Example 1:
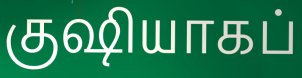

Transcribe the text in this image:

குஷியாகப்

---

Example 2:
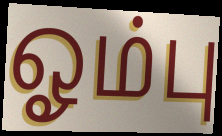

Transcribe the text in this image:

ஓம்பு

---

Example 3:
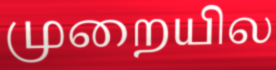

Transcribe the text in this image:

முறையில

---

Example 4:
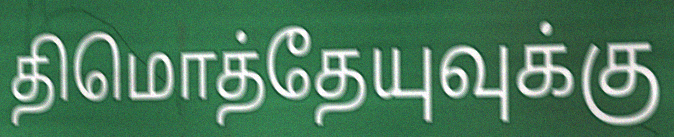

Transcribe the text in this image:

திமொத்தேயுவுக்கு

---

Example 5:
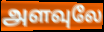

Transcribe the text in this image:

அளவுலே